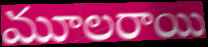
మూలరాయి